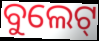
ବୁଲେଟ୍